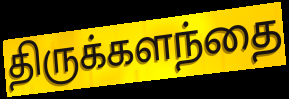
திருக்களந்தை